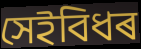
সেইবিধৰ